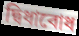
দ্বিধাবোধ